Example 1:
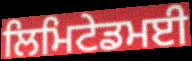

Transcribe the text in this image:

ਲਿਮਿਟੇਡਮਈ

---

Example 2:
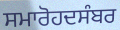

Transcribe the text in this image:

ਸਮਾਰੋਹਦਸੰਬਰ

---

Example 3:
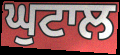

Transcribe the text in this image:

ਘੁਟਾਲ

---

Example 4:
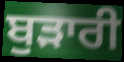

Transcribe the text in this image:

ਬੁੜਾਰੀ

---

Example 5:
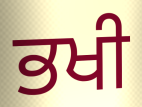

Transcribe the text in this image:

ਭਖੀ